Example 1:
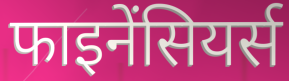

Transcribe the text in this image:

फाइनेंसियर्स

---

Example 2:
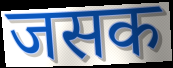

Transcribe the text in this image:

जसक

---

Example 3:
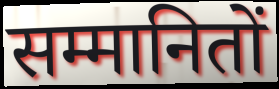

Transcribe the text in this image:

सम्मानितों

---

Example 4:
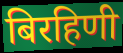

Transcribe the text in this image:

बिरहिणी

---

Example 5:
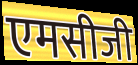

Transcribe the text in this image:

एमसीजी